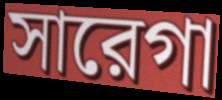
সারেগা